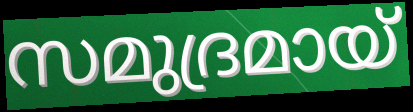
സമുദ്രമായ്